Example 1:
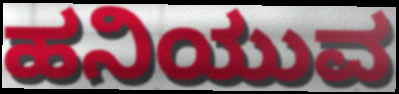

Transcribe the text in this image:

ಹನಿಯುವ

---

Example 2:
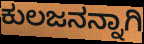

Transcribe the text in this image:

ಕುಲಜನನ್ನಾಗಿ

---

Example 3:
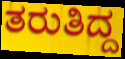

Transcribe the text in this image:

ತರುತಿದ್ದ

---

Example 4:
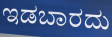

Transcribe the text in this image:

ಇಡಬಾರದು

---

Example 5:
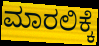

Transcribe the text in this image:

ಮಾರಲಿಕ್ಕೆ